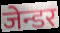
जेन्डर